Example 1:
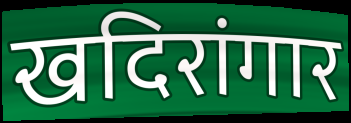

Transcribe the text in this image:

खदिरांगार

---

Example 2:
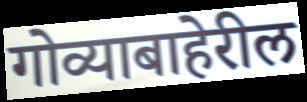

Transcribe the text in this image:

गोव्याबाहेरील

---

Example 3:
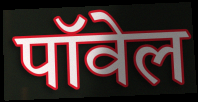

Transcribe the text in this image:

पॉवेल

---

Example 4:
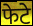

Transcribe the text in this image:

फेटे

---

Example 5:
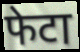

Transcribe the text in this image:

फेटा